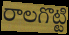
రాలగొట్టి